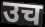
उच